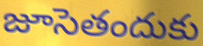
జూసెతందుకు